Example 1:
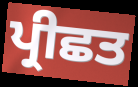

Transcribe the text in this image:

ਪ੍ਰੀਛਤ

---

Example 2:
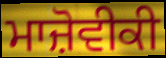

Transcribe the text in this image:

ਮਾਜ਼ੋਵੀਕੀ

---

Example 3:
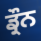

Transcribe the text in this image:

ਡ੍ਰੌਨ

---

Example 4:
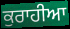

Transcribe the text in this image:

ਕੁਰਾਹੀਆ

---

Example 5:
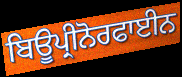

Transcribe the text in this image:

ਬਿਊਪ੍ਰੀਨੋਰਫਾਈਨ